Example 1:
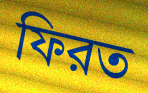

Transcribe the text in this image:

ফিরত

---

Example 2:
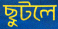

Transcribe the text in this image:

ছুটলে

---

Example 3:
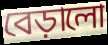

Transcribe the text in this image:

বেড়ালো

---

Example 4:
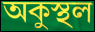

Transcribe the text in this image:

অকুস্থল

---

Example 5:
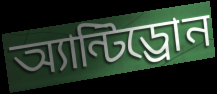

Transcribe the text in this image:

অ্যান্টিড্রোন